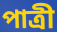
পাত্ৰী